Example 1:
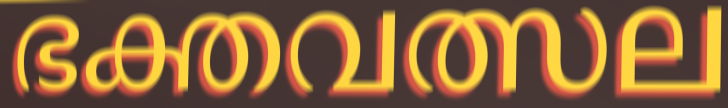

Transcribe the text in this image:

ഭക്തവത്സല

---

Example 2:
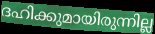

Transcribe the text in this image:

ദഹിക്കുമായിരുന്നില്ല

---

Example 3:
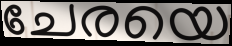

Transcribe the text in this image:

ചേരയെ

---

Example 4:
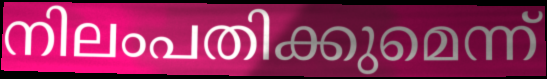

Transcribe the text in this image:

നിലംപതിക്കുമെന്ന്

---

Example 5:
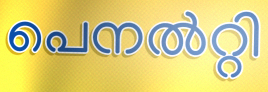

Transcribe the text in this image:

പെനൽറ്റി